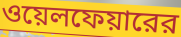
ওয়েলফেয়ারের